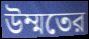
উম্মতের